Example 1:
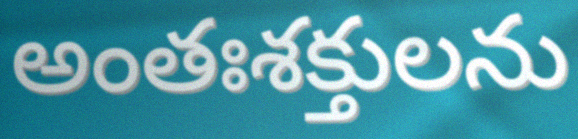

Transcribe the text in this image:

అంతఃశక్తులను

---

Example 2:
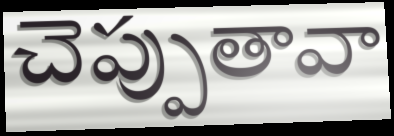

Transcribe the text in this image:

చెప్పుతావా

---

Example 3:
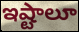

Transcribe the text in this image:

ఇష్టాలూ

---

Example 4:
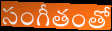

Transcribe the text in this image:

సంగీతంతో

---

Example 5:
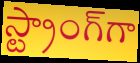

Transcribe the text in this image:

స్ట్రాంగ్‌గా